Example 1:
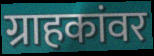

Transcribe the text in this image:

ग्राहकांवर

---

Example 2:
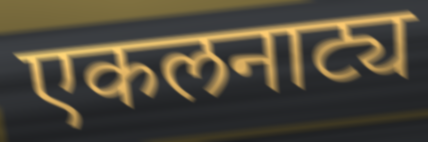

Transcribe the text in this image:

एकलनाट्य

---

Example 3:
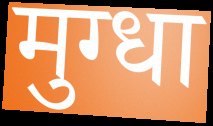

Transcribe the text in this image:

मुग्धा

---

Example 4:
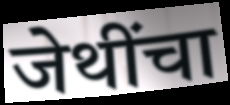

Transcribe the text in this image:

जेथींचा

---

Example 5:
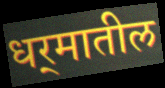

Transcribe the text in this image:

धर्मातील